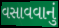
વસાવવાનું